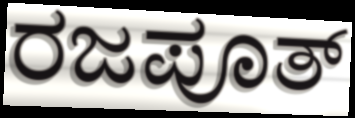
ರಜಪೂತ್